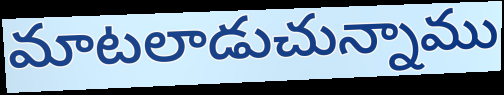
మాటలాడుచున్నాము